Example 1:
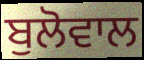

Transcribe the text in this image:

ਬੁਲੋਵਾਲ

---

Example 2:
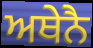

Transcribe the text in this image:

ਅਥੇਨੈ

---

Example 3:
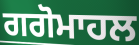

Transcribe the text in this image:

ਗਗੋਮਾਹਲ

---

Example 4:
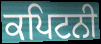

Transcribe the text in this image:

ਕਪਿਟਨੀ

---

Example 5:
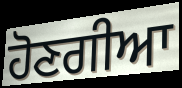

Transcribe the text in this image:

ਹੋਣਗੀਆ